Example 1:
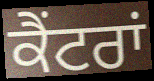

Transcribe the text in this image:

ਕੈਂਟਰਾਂ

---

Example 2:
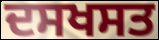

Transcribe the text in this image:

ਦਸਖਸਤ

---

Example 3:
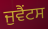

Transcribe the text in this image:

ਜੁਵੈਂਟਸ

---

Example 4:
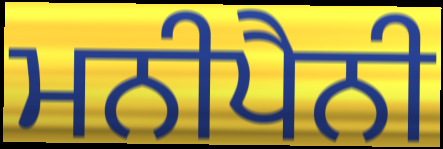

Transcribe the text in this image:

ਮਨੀਪੈਨੀ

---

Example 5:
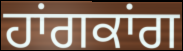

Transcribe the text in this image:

ਹਾਂਗਕਾਂਗ